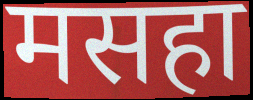
मसहा